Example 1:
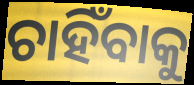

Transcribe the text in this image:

ଚାହିଁବାକୁ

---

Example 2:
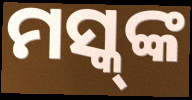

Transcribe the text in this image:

ମସ୍କ୍‌ଙ୍କ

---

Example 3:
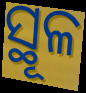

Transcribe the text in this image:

ସ୍ଥୂଳ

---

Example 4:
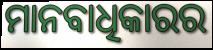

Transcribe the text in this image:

ମାନବାଧିକାରର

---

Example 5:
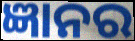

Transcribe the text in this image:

ଜ୍ଞାନର